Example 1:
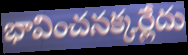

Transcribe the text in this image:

భావించనక్కర్లేదు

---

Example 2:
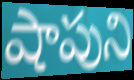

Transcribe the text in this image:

షాపుని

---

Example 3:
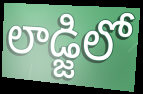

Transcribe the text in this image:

లాడ్జిలో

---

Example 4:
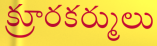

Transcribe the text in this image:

క్రూరకర్ములు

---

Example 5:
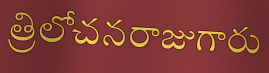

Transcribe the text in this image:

త్రిలోచనరాజుగారు